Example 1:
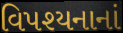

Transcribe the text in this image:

વિપશ્યનાનાં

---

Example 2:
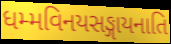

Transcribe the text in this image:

ધમ્મવિનયસઙ્ગાયનાતિ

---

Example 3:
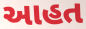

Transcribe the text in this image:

આહત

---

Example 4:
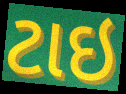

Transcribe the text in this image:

ટાઇ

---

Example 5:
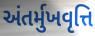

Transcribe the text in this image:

અંતર્મુખવૃત્તિ